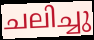
ചലിച്ചു